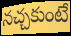
నచ్చకుంటే